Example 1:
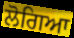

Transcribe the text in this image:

ਲੋਗਿਆ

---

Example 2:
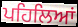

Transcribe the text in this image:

ਪਹਿਲਿਆਂ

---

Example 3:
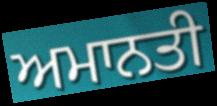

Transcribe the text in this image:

ਅਮਾਨਤੀ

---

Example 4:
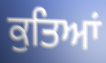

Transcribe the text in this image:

ਕੁਤਿਆਂ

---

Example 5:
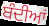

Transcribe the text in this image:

ਬੰਦੀਆਂ